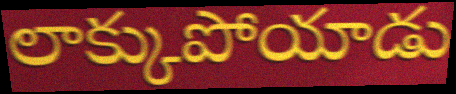
లాక్కుపోయాడు